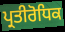
ਪ੍ਰਤੀਰੋਧਿਕ